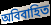
অবিবাহিত